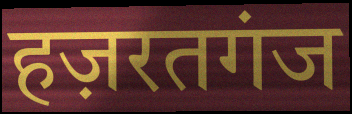
हज़रतगंज